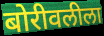
बोरीवलीला